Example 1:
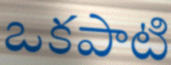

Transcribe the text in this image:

ఒకపాటి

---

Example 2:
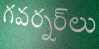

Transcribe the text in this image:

గవర్నర్‌లు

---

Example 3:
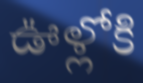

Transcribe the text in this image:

ఊళ్లోకి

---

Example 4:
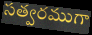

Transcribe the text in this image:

సత్వరముగా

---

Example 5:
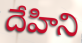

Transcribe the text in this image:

దేహిని